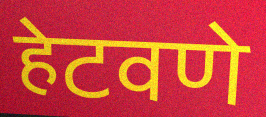
हेटवणे